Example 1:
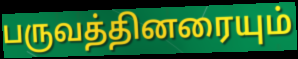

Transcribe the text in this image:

பருவத்தினரையும்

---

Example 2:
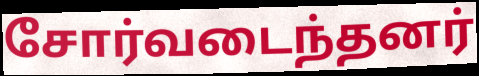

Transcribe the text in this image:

சோர்வடைந்தனர்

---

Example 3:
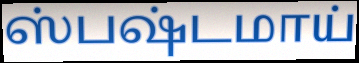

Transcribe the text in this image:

ஸ்பஷ்டமாய்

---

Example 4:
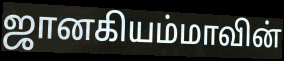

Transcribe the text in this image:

ஜானகியம்மாவின்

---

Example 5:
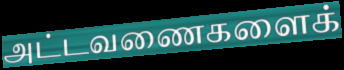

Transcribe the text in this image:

அட்டவணைகளைக்